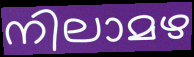
നിലാമഴ